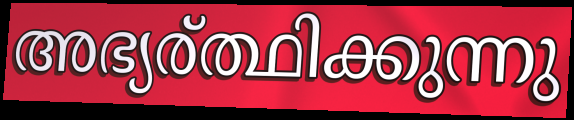
അഭ്യര്ത്ഥിക്കുന്നു